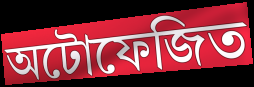
অটোফেজিত